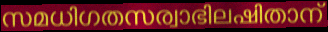
സമധിഗതസര്വാഭിലഷിതാന്